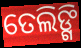
ତେଲିଙ୍ଗି